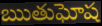
ఋతుఘోష